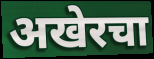
अखेरचा